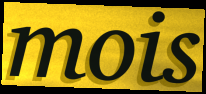
mois